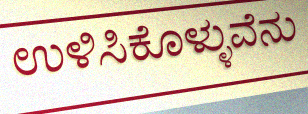
ಉಳಿಸಿಕೊಳ್ಳುವೆನು